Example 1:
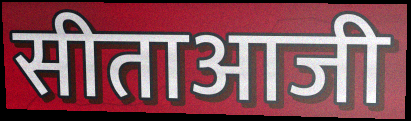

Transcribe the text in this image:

सीताआजी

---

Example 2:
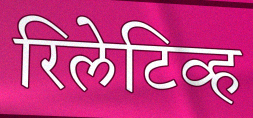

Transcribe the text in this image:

रिलेटिव्ह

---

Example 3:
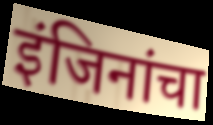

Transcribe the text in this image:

इंजिनांचा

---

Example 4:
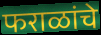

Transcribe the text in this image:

फराळांचे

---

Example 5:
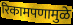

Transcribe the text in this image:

रिकामपणामुळे